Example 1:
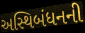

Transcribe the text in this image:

અસ્થિબંધનની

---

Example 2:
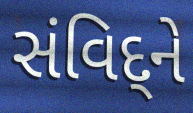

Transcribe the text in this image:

સંવિદ્‌ને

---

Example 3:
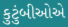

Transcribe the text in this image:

કુટુંબીઓએ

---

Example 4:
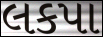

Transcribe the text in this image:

લકપા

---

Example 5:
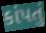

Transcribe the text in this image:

કાંપતું